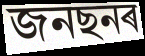
জনছনৰ